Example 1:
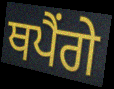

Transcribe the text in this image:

ਥਪੈਂਗੇ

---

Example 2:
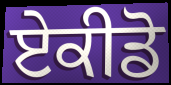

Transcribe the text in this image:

ਏਕੀਡੋ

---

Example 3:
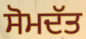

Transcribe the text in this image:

ਸੋਮਦੱਤ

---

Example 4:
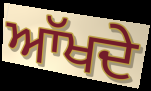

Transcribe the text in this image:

ਆੱਖਦੇ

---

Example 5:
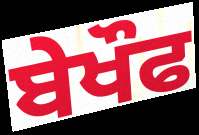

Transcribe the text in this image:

ਬੇਖੌਫ